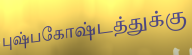
புஷ்பகோஷ்டத்துக்கு